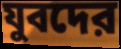
যুবদের